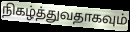
நிகழ்த்துவதாகவும்